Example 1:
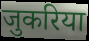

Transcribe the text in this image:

जुकरिया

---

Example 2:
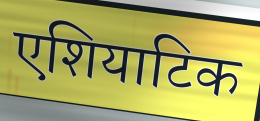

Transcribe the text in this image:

एशियाटिक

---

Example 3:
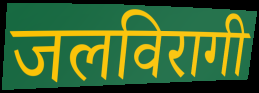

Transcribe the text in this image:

जलविरागी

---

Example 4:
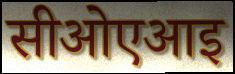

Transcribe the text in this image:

सीओएआइ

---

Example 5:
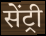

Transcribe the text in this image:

सेंट्री